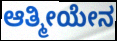
ಆತ್ಮೀಯೇನ